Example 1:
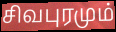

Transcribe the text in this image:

சிவபுரமும்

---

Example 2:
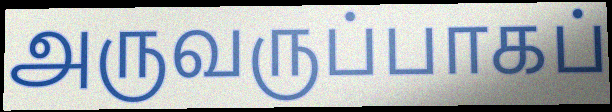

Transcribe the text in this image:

அருவருப்பாகப்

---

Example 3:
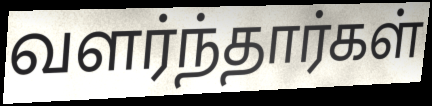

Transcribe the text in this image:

வளர்ந்தார்கள்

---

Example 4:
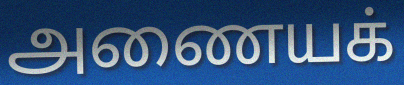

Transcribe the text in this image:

அணையக்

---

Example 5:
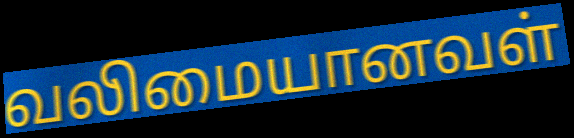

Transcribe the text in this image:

வலிமையானவள்